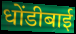
धोंडीबाई